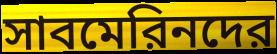
সাবমেরিনদের